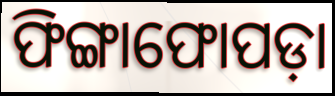
ଫିଙ୍ଗାଫୋପଡ଼ା